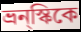
ভ্রন্‌স্কিকে